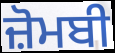
ਜ਼ੋਮਬੀ